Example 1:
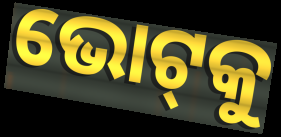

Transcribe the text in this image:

ଭୋଟ୍‍କୁ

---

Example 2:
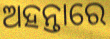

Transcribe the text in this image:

ଅହନ୍ତାରେ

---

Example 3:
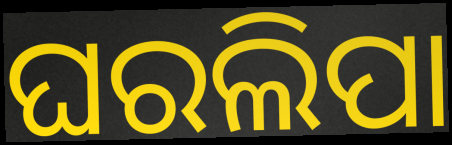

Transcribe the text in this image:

ଘରଲିପା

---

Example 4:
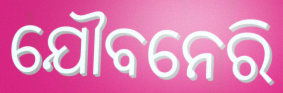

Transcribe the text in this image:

ଯୌବନେରି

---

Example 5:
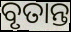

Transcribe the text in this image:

ବୃତାନ୍ତ